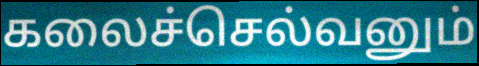
கலைச்செல்வனும்